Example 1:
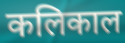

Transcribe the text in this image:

कलिकाल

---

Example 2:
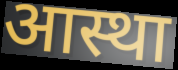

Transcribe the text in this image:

आस्था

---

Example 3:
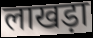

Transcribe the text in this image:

लाखड़ा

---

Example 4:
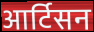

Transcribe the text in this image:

आर्टिसन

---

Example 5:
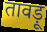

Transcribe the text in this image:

तावड़ू